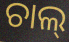
ଚାଲ୍